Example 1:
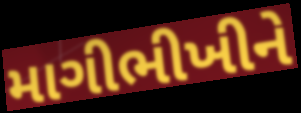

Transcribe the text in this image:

માગીભીખીને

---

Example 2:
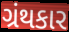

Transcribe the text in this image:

ગ્રંથકાર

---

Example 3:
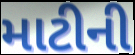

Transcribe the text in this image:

માટીની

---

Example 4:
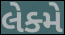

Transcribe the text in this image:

લેક્મે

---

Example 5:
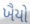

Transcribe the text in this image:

ખૈયો